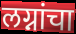
लग्नांचा